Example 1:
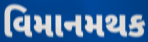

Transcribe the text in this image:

વિમાનમથક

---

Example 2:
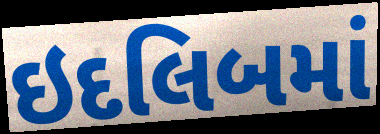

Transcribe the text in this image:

ઇદલિબમાં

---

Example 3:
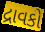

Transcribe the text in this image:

દ્રાવકો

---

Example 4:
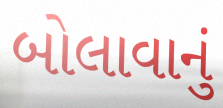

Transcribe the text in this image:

બોલાવાનું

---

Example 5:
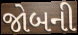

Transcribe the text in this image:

જોબની